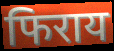
फिराय